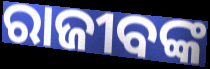
ରାଜୀବଙ୍କ